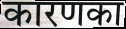
कारणका